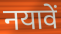
नयावें